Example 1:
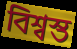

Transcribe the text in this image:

বিশ্বস্ত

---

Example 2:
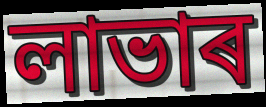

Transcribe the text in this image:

লাভাৰ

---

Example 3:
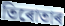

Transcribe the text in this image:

তিৰোতাৰ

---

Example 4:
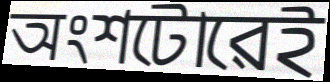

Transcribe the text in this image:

অংশটোৱেই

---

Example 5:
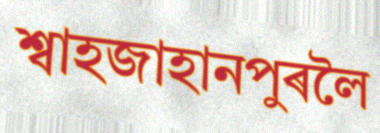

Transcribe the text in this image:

শ্বাহজাহানপুৰলৈ